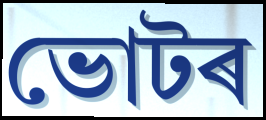
ভোটৰ